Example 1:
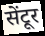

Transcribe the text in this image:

सेंटूर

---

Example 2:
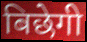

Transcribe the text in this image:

बिछेगी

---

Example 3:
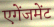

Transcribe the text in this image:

एगेंजमेंट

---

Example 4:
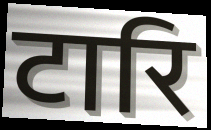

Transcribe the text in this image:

टारि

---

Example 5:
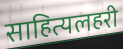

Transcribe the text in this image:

साहित्यलहरी